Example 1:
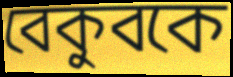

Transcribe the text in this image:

বেকুবকে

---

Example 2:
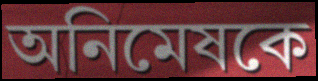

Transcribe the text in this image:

অনিমেষকে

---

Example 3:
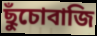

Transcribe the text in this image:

ছুঁচোবাজি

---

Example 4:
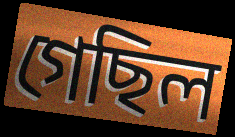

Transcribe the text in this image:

গেছিল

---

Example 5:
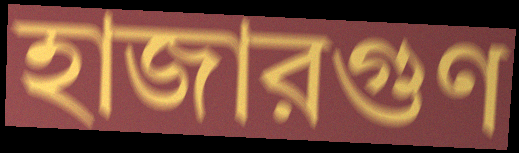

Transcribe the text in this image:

হাজারগুণ